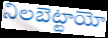
నిలబెట్టాయో